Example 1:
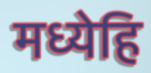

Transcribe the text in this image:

मध्येहि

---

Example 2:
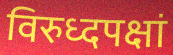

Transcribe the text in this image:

विरुध्दपक्षां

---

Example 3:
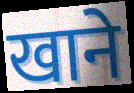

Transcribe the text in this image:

खाने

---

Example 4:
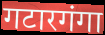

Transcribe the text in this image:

गटारगंगा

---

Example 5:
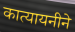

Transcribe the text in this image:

कात्यायनीने